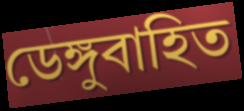
ডেঙ্গুবাহিত